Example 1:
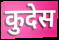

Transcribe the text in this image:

कुदेस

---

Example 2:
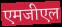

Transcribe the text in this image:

एमजीएल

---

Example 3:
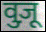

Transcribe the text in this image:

वुज़ू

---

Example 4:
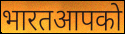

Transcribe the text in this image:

भारतआपको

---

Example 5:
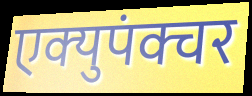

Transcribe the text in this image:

एक्युपंक्चर